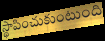
స్థాపించుకుంటుంది